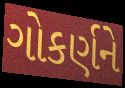
ગોકર્ણને